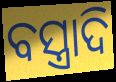
ବସ୍ତ୍ରାଦି